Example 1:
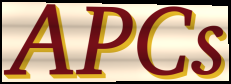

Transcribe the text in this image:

APCs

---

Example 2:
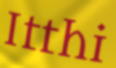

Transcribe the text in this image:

Itthi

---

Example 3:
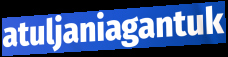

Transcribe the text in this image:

atuljaniagantuk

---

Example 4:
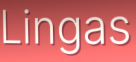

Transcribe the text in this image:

Lingas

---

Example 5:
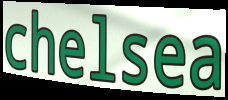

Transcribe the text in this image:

chelsea